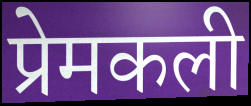
प्रेमकली